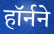
हॉर्नने